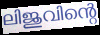
ലിജുവിന്റെ